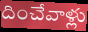
దించేవాళ్లు